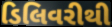
ડિલિવરીથી